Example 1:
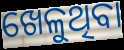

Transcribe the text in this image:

ଖେଳୁଥିବା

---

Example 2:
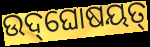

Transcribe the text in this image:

ଉଦ୍‌ଘୋଷୟତ୍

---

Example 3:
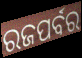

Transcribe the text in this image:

ରଜପର୍ବର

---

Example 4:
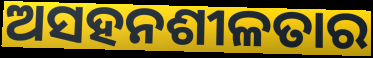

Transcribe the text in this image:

ଅସହନଶୀଳତାର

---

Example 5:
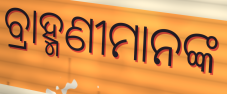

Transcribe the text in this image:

ବ୍ରାହ୍ମଣୀମାନଙ୍କ